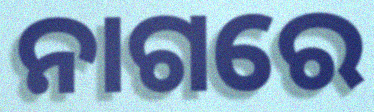
ନାଗରେ